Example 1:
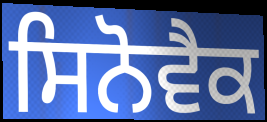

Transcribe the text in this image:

ਸਿਨੋਵੈਕ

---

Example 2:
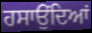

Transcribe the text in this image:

ਹਸਾਉਂਦਿਆਂ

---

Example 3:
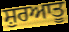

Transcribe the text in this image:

ਸ਼ੁਰਆਤੂ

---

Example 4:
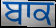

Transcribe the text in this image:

ਬਾਕ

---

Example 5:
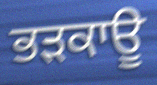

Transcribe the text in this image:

ਭੜਕਾਊ